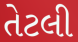
તેટલી